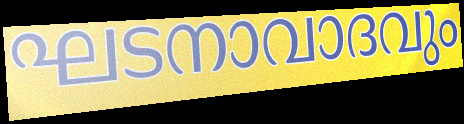
ഘടനാവാദവും